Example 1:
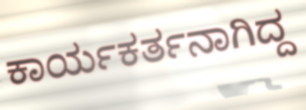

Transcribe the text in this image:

ಕಾರ್ಯಕರ್ತನಾಗಿದ್ದ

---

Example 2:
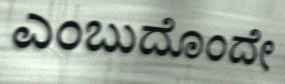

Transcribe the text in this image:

ಎಂಬುದೊಂದೇ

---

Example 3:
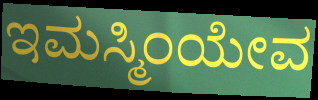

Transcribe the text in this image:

ಇಮಸ್ಮಿಂಯೇವ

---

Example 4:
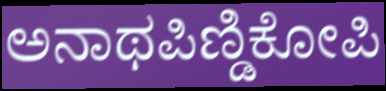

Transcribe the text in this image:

ಅನಾಥಪಿಣ್ಡಿಕೋಪಿ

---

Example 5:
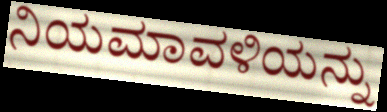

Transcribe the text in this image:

ನಿಯಮಾವಳಿಯನ್ನು